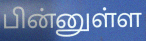
பின்னுள்ள